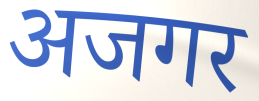
अजगर